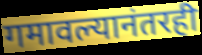
गमावल्यानंतरही